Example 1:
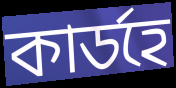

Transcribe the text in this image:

কাৰ্ডহে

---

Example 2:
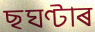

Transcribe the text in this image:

ছঘণ্টাৰ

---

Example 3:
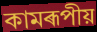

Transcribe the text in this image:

কামৰূপীয়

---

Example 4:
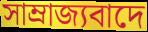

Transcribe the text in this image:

সাম্ৰাজ্যবাদে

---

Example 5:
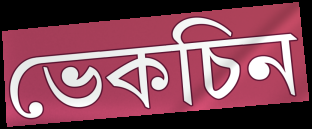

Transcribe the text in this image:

ভেকচিন